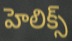
హెలిక్స్